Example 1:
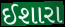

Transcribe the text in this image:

ઈશારા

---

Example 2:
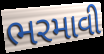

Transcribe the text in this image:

ભરમાવી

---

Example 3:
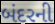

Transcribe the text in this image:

બંદરની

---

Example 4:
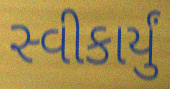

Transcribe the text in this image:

સ્વીકાર્યું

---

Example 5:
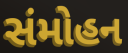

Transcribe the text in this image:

સંમોહન